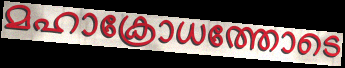
മഹാക്രോധത്തോടെ